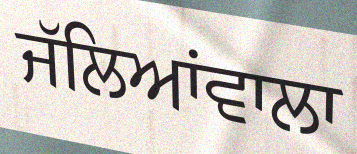
ਜੱਲਿਆਂਵਾਲਾ